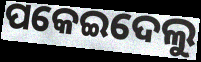
ପକେଇଦେଲୁ